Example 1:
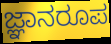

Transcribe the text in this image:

ಜ್ಞಾನರೂಪ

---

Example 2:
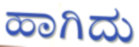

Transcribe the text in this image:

ಹಾಗಿದು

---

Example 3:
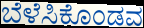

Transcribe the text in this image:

ಬೆಳೆಸಿಕೊಂಡವ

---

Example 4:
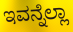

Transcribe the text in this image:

ಇವನ್ನೆಲ್ಲಾ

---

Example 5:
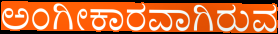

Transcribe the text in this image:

ಅಂಗೀಕಾರವಾಗಿರುವ